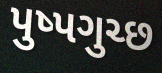
પુષ્પગુચ્છ